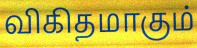
விகிதமாகும்